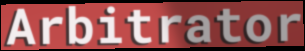
Arbitrator